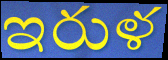
ఇరుళ